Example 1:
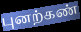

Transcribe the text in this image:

புனற்கண்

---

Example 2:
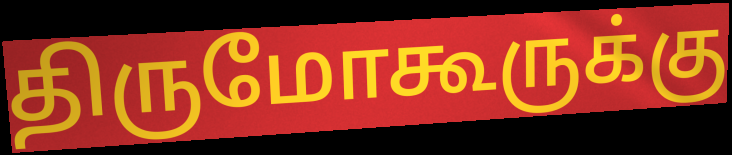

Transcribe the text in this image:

திருமோகூருக்கு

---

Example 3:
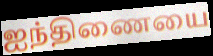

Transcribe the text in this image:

ஐந்திணையை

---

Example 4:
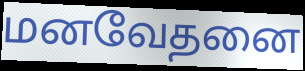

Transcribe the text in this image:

மனவேதனை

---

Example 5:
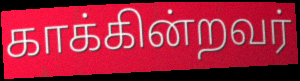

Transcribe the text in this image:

காக்கின்றவர்